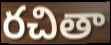
రచితా